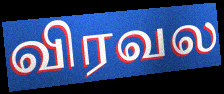
விரவல